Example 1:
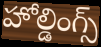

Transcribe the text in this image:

హోల్డింగ్స్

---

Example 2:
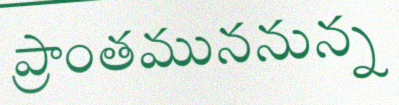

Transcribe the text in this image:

ప్రాంతముననున్న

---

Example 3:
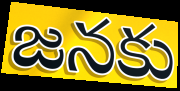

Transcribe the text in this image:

జనకు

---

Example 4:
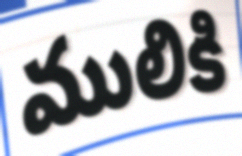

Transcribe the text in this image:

ములికి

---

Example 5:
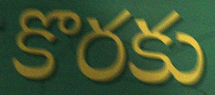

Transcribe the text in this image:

కొరకు